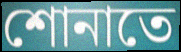
শোনাতে